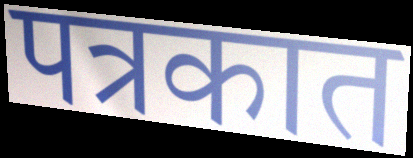
पत्रकात